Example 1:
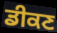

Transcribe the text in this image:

ਡੀਕਣ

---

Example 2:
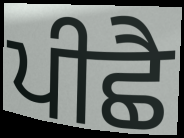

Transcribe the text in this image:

ਪੀਛੈ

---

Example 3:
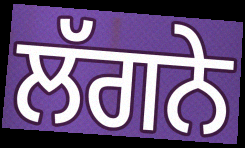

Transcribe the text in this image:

ਲੱਗਨੇ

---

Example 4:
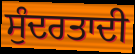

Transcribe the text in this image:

ਸੁੰਦਰਤਾਦੀ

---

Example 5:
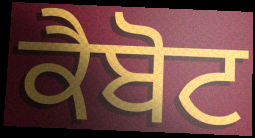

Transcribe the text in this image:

ਕੈਬੋਟ